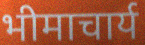
भीमाचार्य